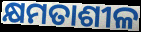
କ୍ଷମତାଶୀଳ